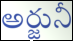
అర్జునీ